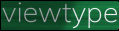
viewtype